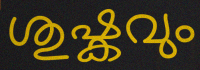
ശുഷ്കവും